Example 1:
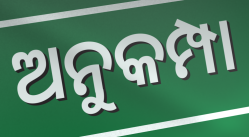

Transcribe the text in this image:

ଅନୁକମ୍ପା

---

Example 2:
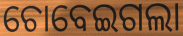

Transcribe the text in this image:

ଚୋବେଇଗଲା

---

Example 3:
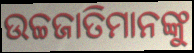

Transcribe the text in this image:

ଉଚ୍ଚଜାତିମାନଙ୍କୁ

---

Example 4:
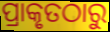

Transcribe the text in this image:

ପ୍ରାକୃତଠାରୁ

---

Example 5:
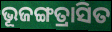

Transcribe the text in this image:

ଭୂଜଙ୍ଗତ୍ରାସିତ